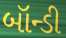
બૉન્ડી